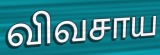
விவசாய